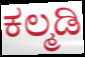
ಕಲ್ಮಡಿ